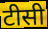
टीसी